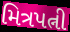
મિત્રપત્ની